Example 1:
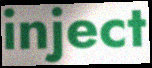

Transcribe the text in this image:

inject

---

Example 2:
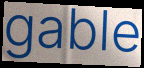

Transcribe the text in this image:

gable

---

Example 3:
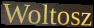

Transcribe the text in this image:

Woltosz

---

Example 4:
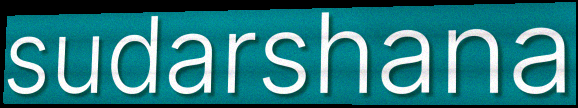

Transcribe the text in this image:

sudarshana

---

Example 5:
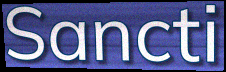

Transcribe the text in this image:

Sancti